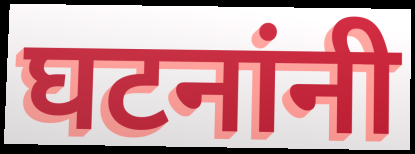
घटनांनी